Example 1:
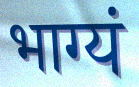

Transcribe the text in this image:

भाग्यं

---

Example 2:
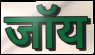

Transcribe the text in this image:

जॉय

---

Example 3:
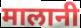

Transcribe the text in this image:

मालानी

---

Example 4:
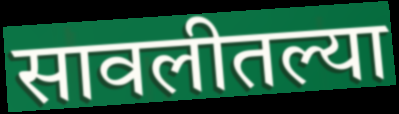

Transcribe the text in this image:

सावलीतल्या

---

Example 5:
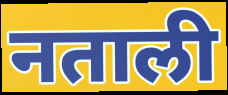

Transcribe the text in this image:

नताली